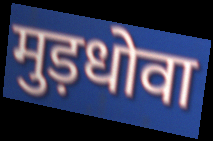
मुड़धोवा